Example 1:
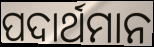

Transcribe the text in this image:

ପଦାର୍ଥମାନ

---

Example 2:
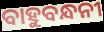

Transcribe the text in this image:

ବାହୁବନ୍ଧନୀ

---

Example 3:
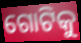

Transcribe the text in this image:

ଗୋଟିକୁ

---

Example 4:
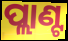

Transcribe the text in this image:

ପ୍ଲାଣ୍ଟ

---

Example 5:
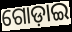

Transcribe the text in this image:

ଗୋଡ଼ାଇ